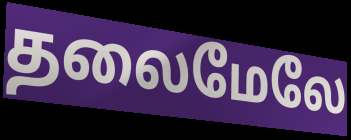
தலைமேலே